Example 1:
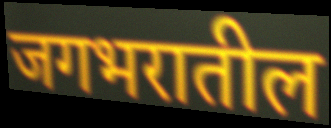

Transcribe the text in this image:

जगभरातील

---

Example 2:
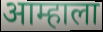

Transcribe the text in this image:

आम्हाला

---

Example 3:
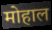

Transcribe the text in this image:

मोहाल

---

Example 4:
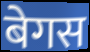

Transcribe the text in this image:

बेगस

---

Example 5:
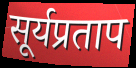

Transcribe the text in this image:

सूर्यप्रताप